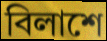
বিলাশে